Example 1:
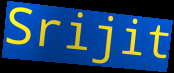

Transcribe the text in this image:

Srijit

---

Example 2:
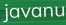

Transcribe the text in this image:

javanu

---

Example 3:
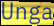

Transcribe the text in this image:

Unga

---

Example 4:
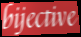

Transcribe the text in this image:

bijective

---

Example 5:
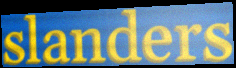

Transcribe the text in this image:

slanders